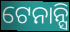
ଟେନାନ୍ସି